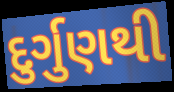
દુર્ગુણથી